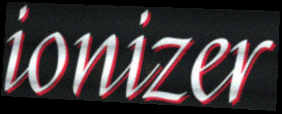
ionizer